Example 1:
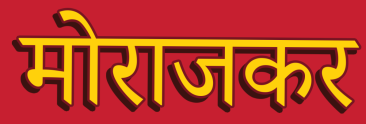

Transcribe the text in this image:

मोराजकर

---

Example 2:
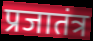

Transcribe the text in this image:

प्रजातंत्र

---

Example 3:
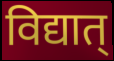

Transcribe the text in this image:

विद्यात्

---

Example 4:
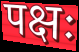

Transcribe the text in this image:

पक्षः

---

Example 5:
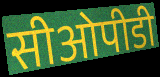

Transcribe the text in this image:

सीओपीडी